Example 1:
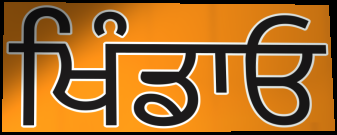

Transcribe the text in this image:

ਖਿੰਡਾਓ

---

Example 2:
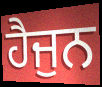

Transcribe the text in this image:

ਹੈਜੁਨ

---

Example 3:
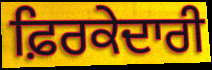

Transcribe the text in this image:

ਫ਼ਿਰਕੇਦਾਰੀ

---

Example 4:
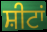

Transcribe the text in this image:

ਸ਼ੀਟਾਂ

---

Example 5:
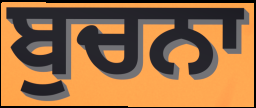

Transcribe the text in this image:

ਬੁਚਨਾ